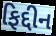
ફિદ્દીન